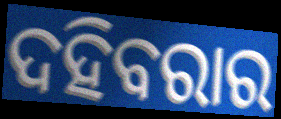
ଦହିବରାର